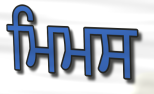
ਮਿਮਸ